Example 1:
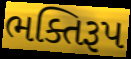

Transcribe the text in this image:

ભક્તિરૂપ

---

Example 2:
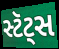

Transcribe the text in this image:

સ્ટૅટ્સ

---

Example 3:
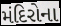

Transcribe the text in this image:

મંદિરોના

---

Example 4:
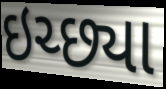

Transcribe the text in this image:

ઇચ્છ્યા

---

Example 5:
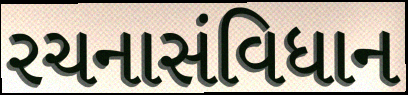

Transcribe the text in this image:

રચનાસંવિધાન